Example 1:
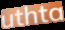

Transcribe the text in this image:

uthta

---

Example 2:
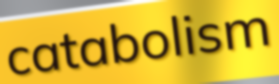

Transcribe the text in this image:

catabolism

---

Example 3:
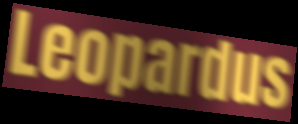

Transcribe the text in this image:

Leopardus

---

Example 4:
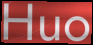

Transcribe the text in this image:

Huo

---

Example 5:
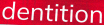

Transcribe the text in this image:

dentition